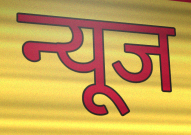
न्‍यूज